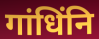
गांधिंनि